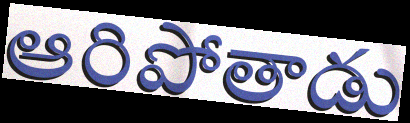
ఆరిపోతాడు